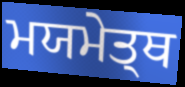
ਮਯਮੇਤ੍ਥ